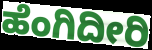
ಹೆಂಗಿದೀರಿ